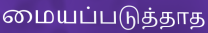
மையப்படுத்தாத